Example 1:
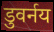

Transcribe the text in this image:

डुवर्नय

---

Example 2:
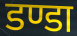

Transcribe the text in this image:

डण्डा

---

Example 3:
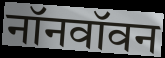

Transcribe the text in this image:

नॉनवॉवन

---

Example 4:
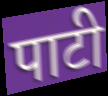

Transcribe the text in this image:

पाटी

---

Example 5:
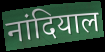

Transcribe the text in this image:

नांदियाल